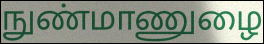
நுண்மாணுழை